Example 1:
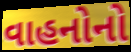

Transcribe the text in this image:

વાહનોનો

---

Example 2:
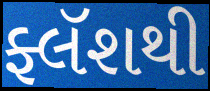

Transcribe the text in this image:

ફ્લૅશથી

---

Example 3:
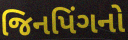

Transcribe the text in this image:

જિનપિંગનો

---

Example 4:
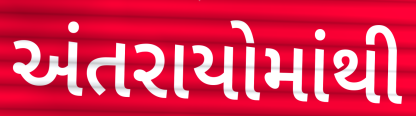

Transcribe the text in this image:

અંતરાયોમાંથી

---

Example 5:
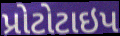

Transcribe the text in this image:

પ્રોટોટાઇપ